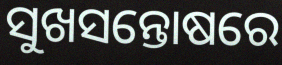
ସୁଖସନ୍ତୋଷରେ